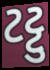
ટટ્ટુ